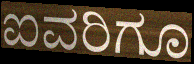
ಐವರಿಗೂ